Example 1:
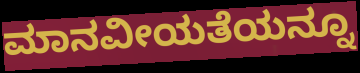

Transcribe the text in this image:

ಮಾನವೀಯತೆಯನ್ನೂ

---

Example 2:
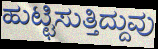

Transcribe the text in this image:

ಹುಟ್ಟಿಸುತ್ತಿದ್ದುವು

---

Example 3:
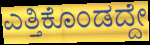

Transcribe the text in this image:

ಎತ್ತಿಕೊಂಡದ್ದೇ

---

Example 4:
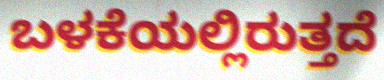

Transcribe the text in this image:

ಬಳಕೆಯಲ್ಲಿರುತ್ತದೆ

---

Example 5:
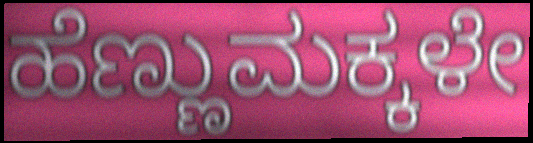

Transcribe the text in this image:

ಹೆಣ್ಣುಮಕ್ಕಳೇ